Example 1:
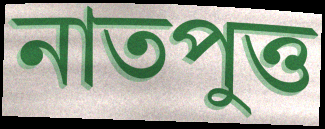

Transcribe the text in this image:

নাতপুত্ত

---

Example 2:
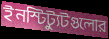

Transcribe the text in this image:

ইনস্টিট্যুটগুলোর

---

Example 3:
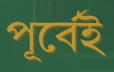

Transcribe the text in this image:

পূর্বেই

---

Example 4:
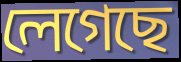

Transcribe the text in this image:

লেগেছে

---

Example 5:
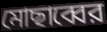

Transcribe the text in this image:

মোছাব্বের